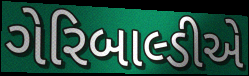
ગેરિબાલ્ડીએ